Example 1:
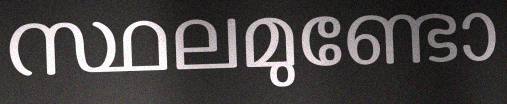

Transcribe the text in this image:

സ്ഥലമുണ്ടോ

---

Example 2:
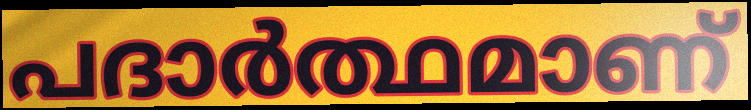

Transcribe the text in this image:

പദാർത്ഥമാണ്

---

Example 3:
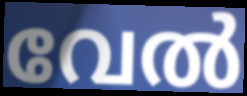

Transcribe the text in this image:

വേൽ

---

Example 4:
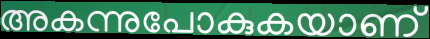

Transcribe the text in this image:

അകന്നുപോകുകയാണ്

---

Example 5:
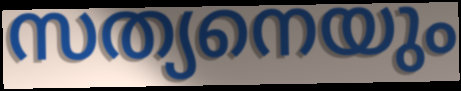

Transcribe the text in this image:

സത്യനെയും